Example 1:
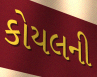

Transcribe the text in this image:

કોયલની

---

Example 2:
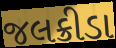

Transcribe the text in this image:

જલક્રીડા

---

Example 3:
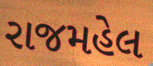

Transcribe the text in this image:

રાજમહેલ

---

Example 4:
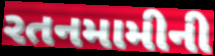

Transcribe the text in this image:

રતનમામીની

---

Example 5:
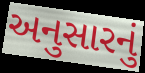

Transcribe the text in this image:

અનુસારનું